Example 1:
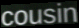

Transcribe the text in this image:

cousin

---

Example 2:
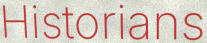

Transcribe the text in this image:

Historians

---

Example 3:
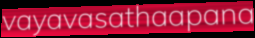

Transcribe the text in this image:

vayavasathaapana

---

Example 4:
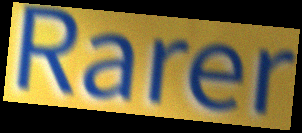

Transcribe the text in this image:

Rarer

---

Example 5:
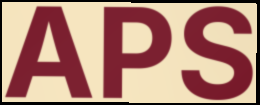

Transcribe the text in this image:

APS